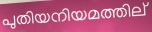
പുതിയനിയമത്തില്